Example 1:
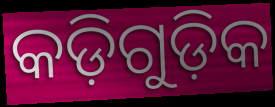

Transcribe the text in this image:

କଡ଼ିଗୁଡ଼ିକ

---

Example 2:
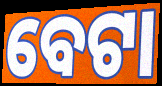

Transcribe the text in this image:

ବେଟା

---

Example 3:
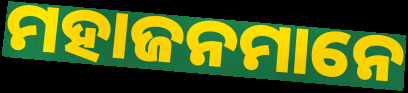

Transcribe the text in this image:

ମହାଜନମାନେ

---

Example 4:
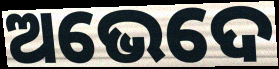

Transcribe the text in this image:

ଅଭେଦେ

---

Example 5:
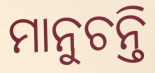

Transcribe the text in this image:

ମାନୁଚନ୍ତି